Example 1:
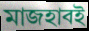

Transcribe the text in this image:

মাজহাবই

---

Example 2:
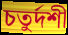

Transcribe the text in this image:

চতুর্দশী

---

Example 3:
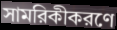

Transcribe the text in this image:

সামরিকীকরণে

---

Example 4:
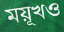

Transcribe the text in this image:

ময়ূখও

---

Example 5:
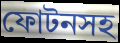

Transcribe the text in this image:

ফোটনসহ